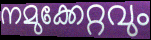
നമുക്കേറ്റവും